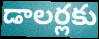
డాలర్లకు